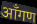
आँगण